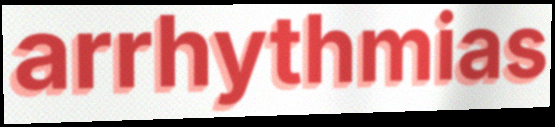
arrhythmias